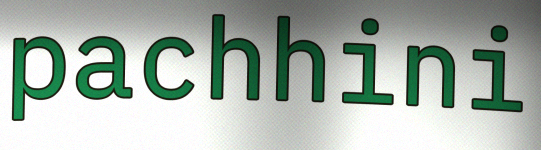
pachhini